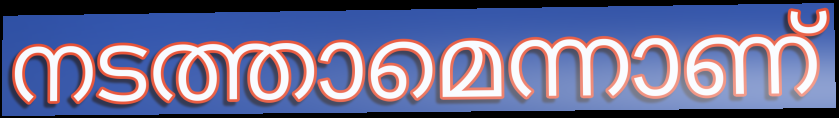
നടത്താമെന്നാണ്